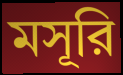
মসূরি